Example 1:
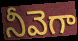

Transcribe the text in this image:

నీవెగా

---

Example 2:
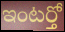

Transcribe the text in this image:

ఇంటర్తో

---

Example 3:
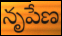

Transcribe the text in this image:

నృపేణ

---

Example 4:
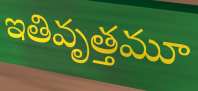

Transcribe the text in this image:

ఇతివృత్తమూ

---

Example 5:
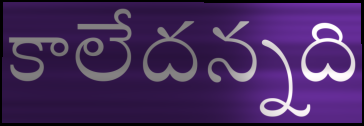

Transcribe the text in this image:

కాలేదన్నది